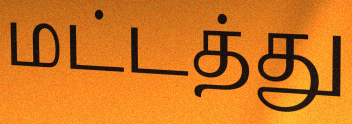
மட்டத்து